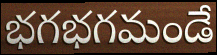
భగభగమండే